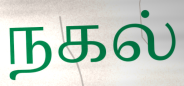
நகல்